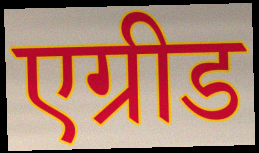
एग्रीड